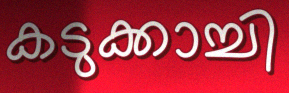
കടുക്കാച്ചി